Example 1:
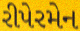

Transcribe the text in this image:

રીપેરમેન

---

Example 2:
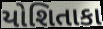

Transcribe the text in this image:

યોશિતાકા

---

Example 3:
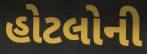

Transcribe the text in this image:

હોટલોની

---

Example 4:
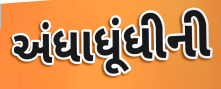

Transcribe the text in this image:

અંધાધૂંધીની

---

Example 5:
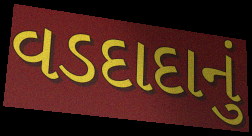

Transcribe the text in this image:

વડદાદાનું